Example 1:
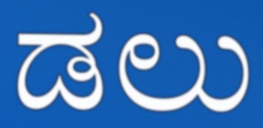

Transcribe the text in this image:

ಡಲು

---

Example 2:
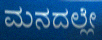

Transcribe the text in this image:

ಮನದಲ್ಲೇ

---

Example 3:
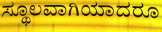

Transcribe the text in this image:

ಸ್ಥೂಲವಾಗಿಯಾದರೂ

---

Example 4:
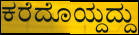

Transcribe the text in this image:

ಕರೆದೊಯ್ದದ್ದು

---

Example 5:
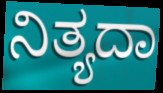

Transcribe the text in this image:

ನಿತ್ಯದಾ